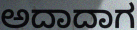
ಅದಾದಾಗ